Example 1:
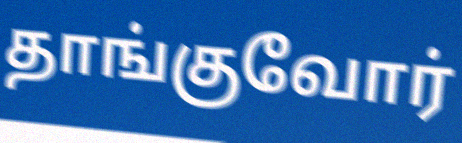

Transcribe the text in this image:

தாங்குவோர்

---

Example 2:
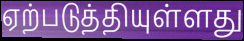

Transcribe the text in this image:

ஏற்படுத்தியுள்ளது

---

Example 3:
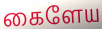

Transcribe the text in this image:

கைளேய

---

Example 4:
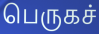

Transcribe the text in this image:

பெருகச்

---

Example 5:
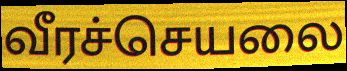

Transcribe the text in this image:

வீரச்செயலை